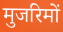
मुजरिमों